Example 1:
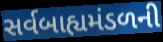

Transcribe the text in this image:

સર્વબાહ્યમંડળની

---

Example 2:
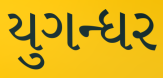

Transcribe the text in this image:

યુગન્ધર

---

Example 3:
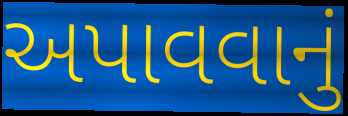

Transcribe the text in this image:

અપાવવાનું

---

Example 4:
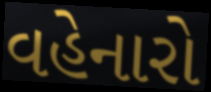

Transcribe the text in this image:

વહેનારો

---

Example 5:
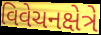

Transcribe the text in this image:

વિવેચનક્ષેત્રે